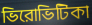
ভিরোভিটিকা